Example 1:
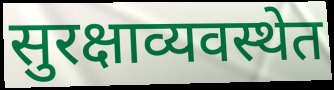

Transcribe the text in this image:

सुरक्षाव्यवस्थेत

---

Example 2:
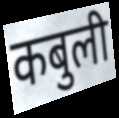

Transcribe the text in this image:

कबुली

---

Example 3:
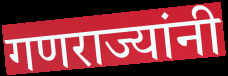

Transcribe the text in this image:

गणराज्यांनी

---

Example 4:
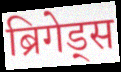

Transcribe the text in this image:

ब्रिगेड्स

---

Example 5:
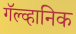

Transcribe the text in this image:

गॅल्व्हानिक